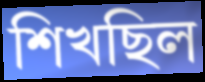
শিখছিল